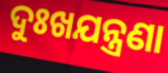
ଦୁଃଖଯନ୍ତ୍ରଣା